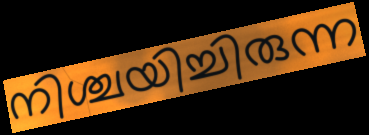
നിശ്ചയിച്ചിരുന്ന